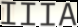
IIIA